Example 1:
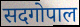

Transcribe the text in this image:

सदगोपाल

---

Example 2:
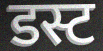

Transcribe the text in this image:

डस्ट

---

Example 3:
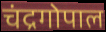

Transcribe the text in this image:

चंद्रगोपाल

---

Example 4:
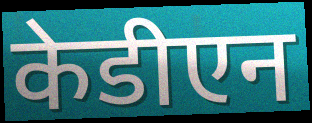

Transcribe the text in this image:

केडीएन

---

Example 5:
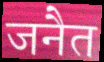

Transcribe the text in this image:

जनैत